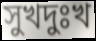
সুখদুঃখ